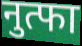
नुत्फा